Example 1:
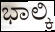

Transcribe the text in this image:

ಭಾಲ್ಕಿ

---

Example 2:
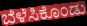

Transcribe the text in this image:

ಬೆಳೆಸಿಕೊಂಡು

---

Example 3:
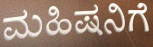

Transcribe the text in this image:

ಮಹಿಷನಿಗೆ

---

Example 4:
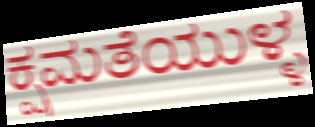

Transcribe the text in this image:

ಕ್ಷಮತೆಯುಳ್ಳ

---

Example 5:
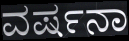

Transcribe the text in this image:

ವರ್ಷನಾ